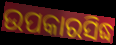
ଉପକାରସିଦ୍ଧ